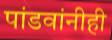
पांडवांनीही